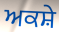
ਅਕਸ਼ੇ